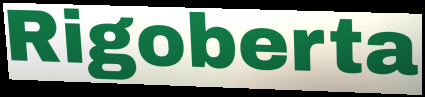
Rigoberta